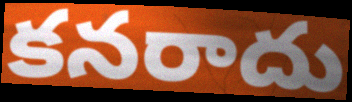
కనరాదు